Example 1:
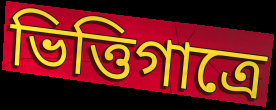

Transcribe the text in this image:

ভিত্তিগাত্রে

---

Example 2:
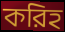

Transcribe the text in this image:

করিহ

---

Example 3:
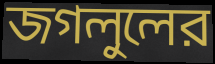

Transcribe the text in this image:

জগলুলের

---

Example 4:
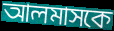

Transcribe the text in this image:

আলমাসকে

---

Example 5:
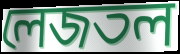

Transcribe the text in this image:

লেজতল